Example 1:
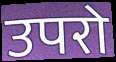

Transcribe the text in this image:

उपरो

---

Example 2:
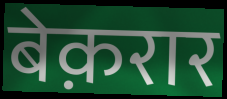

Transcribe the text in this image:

बेक़रार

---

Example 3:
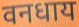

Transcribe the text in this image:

वनधाय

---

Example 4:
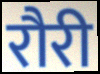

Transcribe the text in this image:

रौरी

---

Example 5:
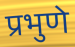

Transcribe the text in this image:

प्रभुणे